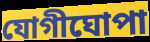
যোগীঘোপা